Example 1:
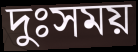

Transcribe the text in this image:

দুঃসময়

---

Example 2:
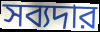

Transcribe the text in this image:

সব্যদার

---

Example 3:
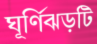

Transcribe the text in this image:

ঘূর্ণিঝড়টি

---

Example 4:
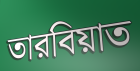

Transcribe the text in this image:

তারবিয়াত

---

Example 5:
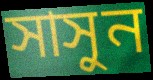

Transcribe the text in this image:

সাসুন